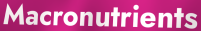
Macronutrients